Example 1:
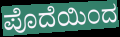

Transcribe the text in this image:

ಪೊದೆಯಿಂದ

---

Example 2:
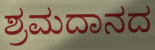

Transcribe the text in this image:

ಶ್ರಮದಾನದ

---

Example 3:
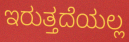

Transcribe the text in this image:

ಇರುತ್ತದೆಯಲ್ಲ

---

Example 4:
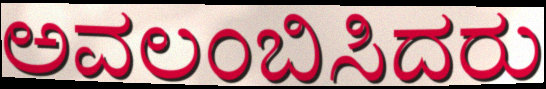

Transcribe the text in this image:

ಅವಲಂಬಿಸಿದರು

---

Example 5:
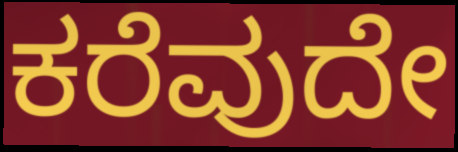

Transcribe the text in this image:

ಕರೆವುದೇ